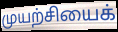
முயற்சியைக்